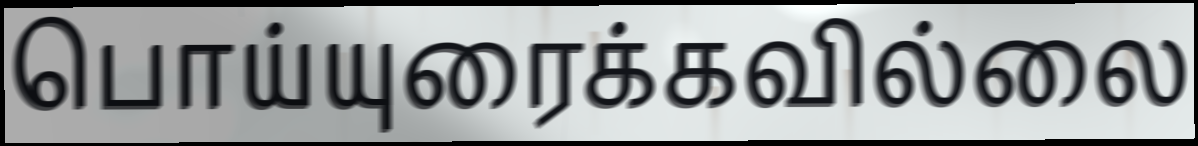
பொய்யுரைக்கவில்லை